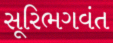
સૂરિભગવંત